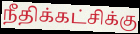
நீதிக்கட்சிக்கு